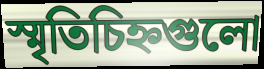
স্মৃতিচিহ্নগুলো